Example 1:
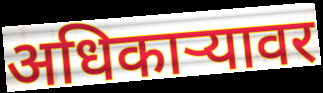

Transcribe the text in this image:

अधिकाऱ्यावर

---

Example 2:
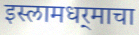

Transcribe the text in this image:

इस्लामधर्माचा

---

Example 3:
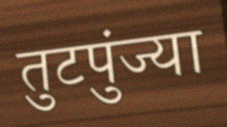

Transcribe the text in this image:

तुटपुंज्या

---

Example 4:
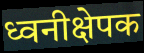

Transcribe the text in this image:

ध्वनीक्षेपक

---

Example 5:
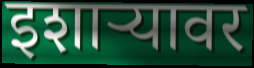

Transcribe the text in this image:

इशाऱ्यावर